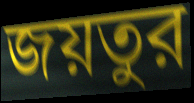
জয়তুর